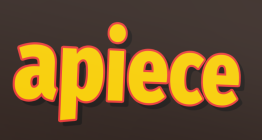
apiece